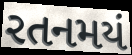
રતનમયં